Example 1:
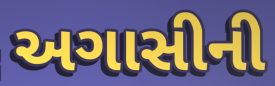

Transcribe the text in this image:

અગાસીની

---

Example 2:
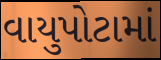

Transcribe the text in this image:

વાયુપોટામાં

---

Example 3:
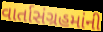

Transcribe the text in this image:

વાર્તાસંગ્રહમાંની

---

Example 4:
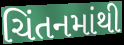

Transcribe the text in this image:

ચિંતનમાંથી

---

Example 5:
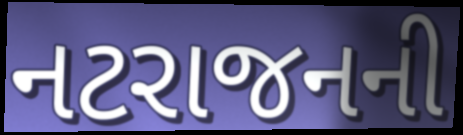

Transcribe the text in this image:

નટરાજનની